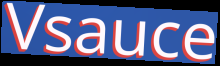
Vsauce